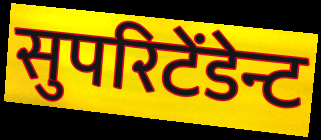
सुपरिटेंडेन्ट